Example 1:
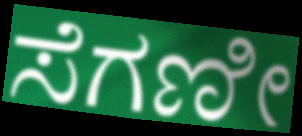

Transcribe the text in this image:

ಸೆಗಣೀ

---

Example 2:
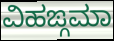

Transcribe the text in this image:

ವಿಹಙ್ಗಮಾ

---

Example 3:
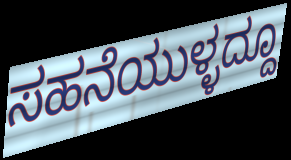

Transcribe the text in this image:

ಸಹನೆಯುಳ್ಳದ್ದೂ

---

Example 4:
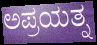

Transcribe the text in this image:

ಅಪ್ರಯತ್ನ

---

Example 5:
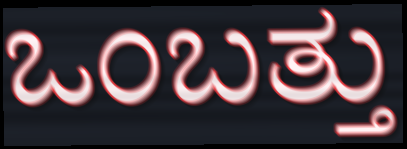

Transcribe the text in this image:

ಒಂಬತ್ತು